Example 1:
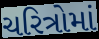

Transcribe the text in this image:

ચરિત્રોમાં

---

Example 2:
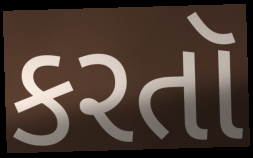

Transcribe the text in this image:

કરતૉ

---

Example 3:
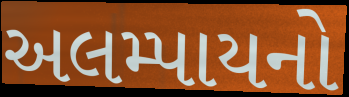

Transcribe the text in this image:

અલમ્પાયનો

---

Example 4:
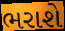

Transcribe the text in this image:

ભરાશે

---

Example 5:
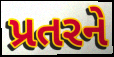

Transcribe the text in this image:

પ્રતરને